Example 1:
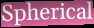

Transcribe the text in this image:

Spherical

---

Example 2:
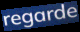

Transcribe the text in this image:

regarde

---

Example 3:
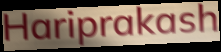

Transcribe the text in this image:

Hariprakash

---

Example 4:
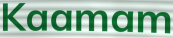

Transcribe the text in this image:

Kaamam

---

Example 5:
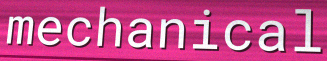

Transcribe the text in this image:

mechanical